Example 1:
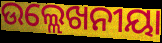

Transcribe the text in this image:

ଉଲ୍ଲେଖନୀୟା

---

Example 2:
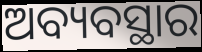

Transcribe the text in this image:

ଅବ୍ୟବସ୍ଥାର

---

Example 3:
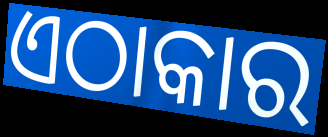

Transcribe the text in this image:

ଏଠାକାର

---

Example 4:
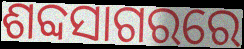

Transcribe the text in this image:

ଶବ୍ଦସାଗରରେ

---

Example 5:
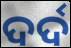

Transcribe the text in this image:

ଦର୍ଦ